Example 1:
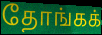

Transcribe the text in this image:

தோங்கக்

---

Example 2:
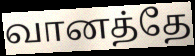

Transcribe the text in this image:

வானத்தே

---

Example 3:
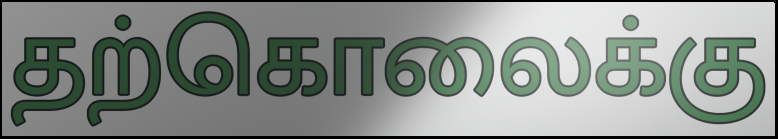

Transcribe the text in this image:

தற்கொலைக்கு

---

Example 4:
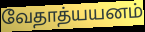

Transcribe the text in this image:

வேதாத்யயனம்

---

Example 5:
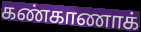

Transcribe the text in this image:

கண்காணாக்